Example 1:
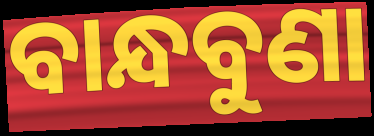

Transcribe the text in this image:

ବାନ୍ଧବୁଣା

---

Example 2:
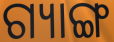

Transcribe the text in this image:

ଗ୍ୟାଙ୍ଗ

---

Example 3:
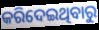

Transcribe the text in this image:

କରିଦେଇଥିବାରୁ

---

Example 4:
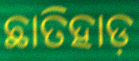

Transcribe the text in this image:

ଛାତିହାଡ଼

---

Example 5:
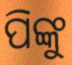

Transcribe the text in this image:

ପିଙ୍କୁ